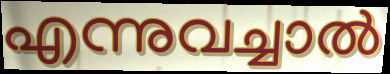
എന്നുവച്ചാൽ